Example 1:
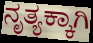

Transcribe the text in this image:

ನೃತ್ಯಕ್ಕಾಗಿ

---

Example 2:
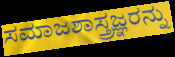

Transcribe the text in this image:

ಸಮಾಜಶಾಸ್ತ್ರಜ್ಞರನ್ನು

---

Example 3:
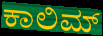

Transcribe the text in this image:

ಕಾಲಿಮ್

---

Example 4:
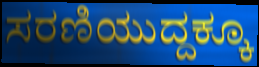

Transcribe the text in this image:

ಸರಣಿಯುದ್ದಕ್ಕೂ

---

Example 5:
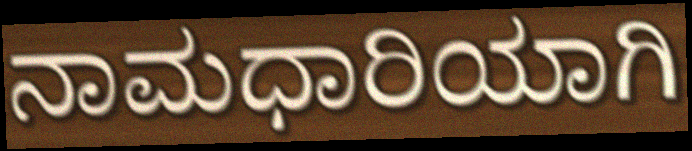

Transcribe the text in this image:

ನಾಮಧಾರಿಯಾಗಿ